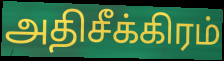
அதிசீக்கிரம்